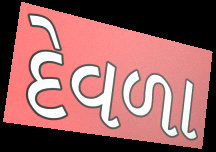
દેવળા